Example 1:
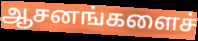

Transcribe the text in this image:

ஆசனங்களைச்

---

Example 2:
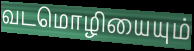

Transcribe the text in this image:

வடமொழியையும்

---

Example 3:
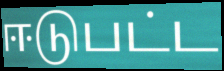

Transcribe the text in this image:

ஈடுபட்ட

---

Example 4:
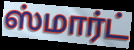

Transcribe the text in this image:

ஸ்மார்ட்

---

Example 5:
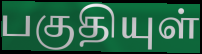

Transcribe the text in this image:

பகுதியுள்